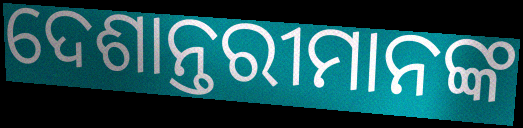
ଦେଶାନ୍ତରୀମାନଙ୍କ